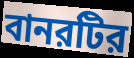
বানরটির